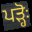
ਪੜ੍ਹੋਃ